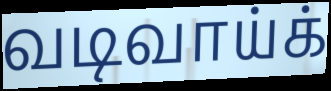
வடிவாய்க்